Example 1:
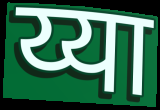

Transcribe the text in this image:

य्या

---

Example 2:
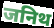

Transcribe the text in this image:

जनिथ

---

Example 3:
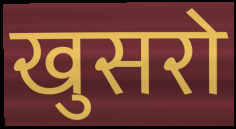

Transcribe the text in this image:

खुसरो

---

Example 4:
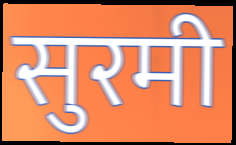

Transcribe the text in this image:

सुरमी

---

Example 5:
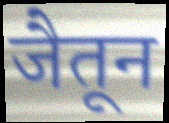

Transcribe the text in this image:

जैतून